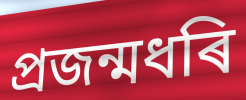
প্ৰজন্মধৰি